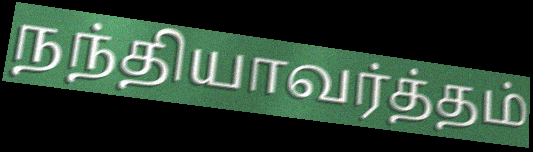
நந்தியாவர்த்தம்